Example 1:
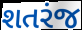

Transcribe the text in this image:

શતરંજ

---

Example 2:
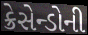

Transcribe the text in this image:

ક્રેસેન્ડોની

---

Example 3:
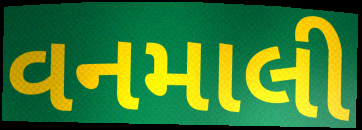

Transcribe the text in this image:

વનમાલી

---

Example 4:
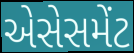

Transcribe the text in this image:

એસેસમેંટ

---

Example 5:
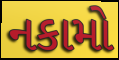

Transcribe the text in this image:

નકામો